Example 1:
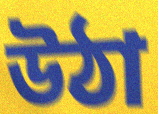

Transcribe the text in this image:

উঠা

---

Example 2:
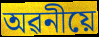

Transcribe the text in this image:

অৱনীয়ে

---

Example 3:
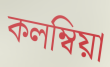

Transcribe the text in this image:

কলম্বিয়া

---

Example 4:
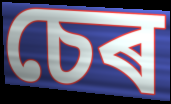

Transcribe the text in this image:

চেৰ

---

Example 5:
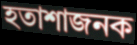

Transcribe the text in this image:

হতাশাজনক